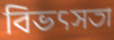
বিভৎসতা